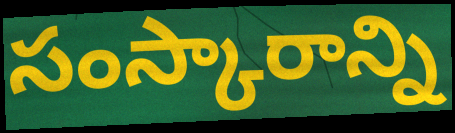
సంస్కారాన్ని